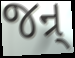
જન્ર્